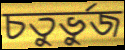
চতুৰ্ভুজ